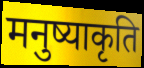
मनुष्याकृति